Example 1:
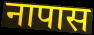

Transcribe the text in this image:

नापास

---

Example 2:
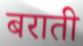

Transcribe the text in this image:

बराती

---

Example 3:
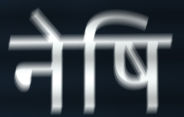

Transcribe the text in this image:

नेषि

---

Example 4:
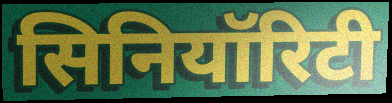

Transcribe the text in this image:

सिनियॉरिटी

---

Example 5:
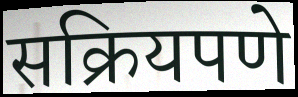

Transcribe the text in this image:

सक्रियपणे